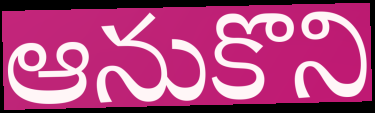
ఆనుకొని